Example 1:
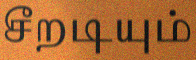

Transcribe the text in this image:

சீறடியும்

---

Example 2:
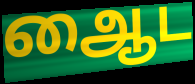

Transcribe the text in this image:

ஆைட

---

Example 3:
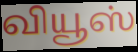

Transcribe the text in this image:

வியூஸ்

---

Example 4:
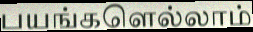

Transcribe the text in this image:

பயங்களெல்லாம்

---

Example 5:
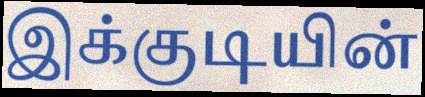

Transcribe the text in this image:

இக்குடியின்